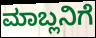
ಮಾಬ್ಲನಿಗೆ